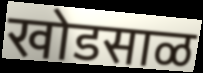
खोडसाळ